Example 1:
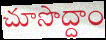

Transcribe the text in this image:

చూసొద్దాం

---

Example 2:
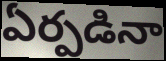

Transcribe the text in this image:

ఏర్పడినా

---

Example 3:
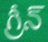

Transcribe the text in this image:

గ్రీన్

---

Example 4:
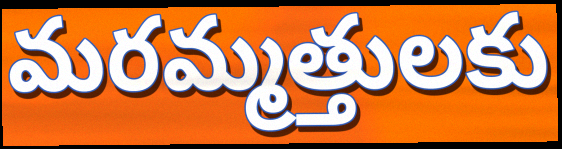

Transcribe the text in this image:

మరమ్మత్తులకు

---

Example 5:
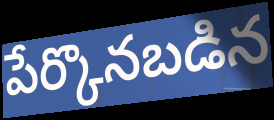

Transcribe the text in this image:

పేర్కొనబడిన